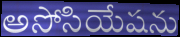
అసోసియేషను